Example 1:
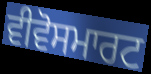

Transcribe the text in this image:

ਵੀਵੋਸਮਾਰਟ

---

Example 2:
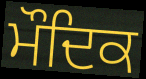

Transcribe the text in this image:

ਮੌਦਿਕ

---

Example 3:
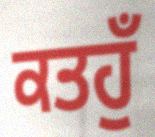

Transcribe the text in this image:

ਕਤਹੁਁ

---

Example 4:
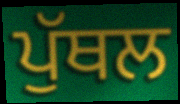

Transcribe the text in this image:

ਪੁੱਥਲ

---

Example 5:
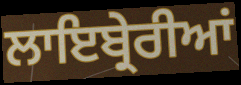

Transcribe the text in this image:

ਲਾਇਬ੍ਰੇਰੀਆਂ